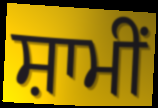
ਸ਼ਾਮੀਂ